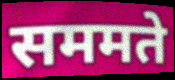
सममते